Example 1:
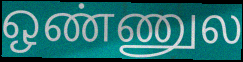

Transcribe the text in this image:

ஒண்ணுல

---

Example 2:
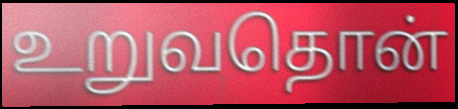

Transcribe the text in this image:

உறுவதொன்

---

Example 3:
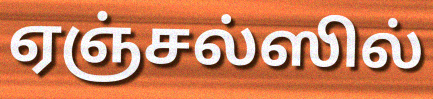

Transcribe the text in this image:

ஏஞ்சல்ஸில்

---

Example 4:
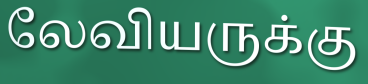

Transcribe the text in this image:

லேவியருக்கு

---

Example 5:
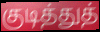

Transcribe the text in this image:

குடித்துத்